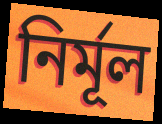
নিৰ্মূল